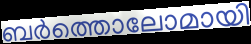
ബർത്തൊലോമായി